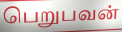
பெறுபவன்